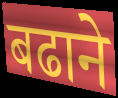
बढाने